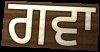
ਗਵਾ